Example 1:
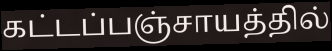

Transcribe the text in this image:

கட்டப்பஞ்சாயத்தில்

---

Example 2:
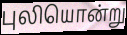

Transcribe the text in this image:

புலியொன்று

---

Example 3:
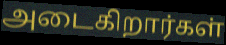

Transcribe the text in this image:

அடைகிறார்கள்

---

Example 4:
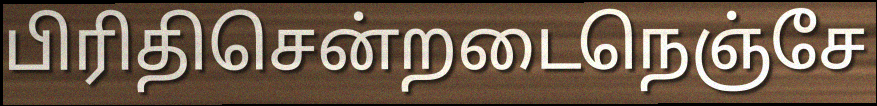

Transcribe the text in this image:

பிரிதிசென்றடைநெஞ்சே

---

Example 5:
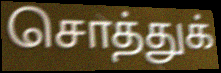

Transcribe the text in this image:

சொத்துக்